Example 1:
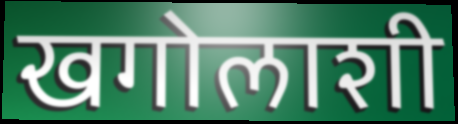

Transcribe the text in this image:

खगोलाशी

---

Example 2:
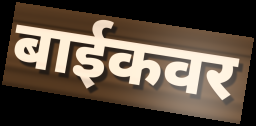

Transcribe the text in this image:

बाईकवर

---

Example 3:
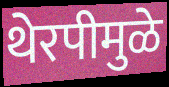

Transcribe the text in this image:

थेरपीमुळे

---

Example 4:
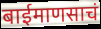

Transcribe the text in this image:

बाईमाणसाचं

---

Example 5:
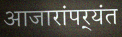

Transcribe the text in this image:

आजारांपर्यंत